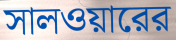
সালওয়ারের